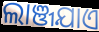
ଲାଞ୍ଜଯାଏ